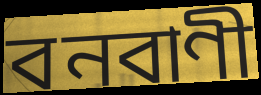
বনবাণী